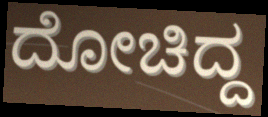
ದೋಚಿದ್ದ